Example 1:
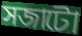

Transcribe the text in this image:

সজাটো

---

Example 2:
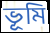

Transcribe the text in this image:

ভূমি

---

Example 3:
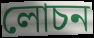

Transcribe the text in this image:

লোচন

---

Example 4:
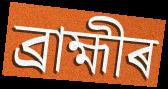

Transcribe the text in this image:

ব্ৰাহ্মীৰ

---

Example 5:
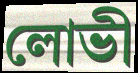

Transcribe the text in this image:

লোভী